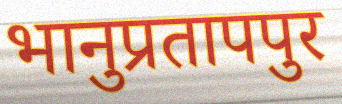
भानुप्रतापपुर